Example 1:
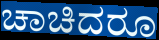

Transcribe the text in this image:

ಚಾಚಿದರೂ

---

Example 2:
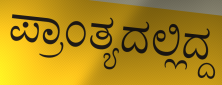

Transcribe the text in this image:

ಪ್ರಾಂತ್ಯದಲ್ಲಿದ್ದ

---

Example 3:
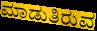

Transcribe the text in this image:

ಮಾಡುತಿರುವ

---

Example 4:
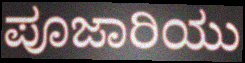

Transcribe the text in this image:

ಪೂಜಾರಿಯು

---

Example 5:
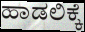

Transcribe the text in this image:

ಹಾಡಲಿಕ್ಕೆ